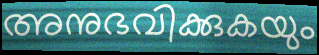
അനുഭവിക്കുകയും